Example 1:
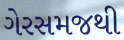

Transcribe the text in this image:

ગેરસમજથી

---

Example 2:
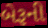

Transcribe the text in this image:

બેરૂની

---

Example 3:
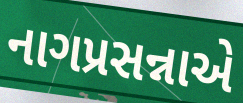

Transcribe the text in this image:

નાગપ્રસન્નાએ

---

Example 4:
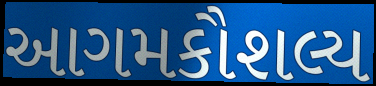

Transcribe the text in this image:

આગમકૌશલ્ય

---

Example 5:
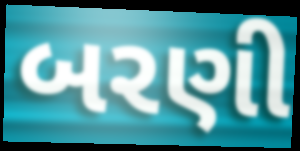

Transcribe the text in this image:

બરણી